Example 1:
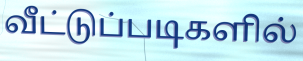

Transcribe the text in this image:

வீட்டுப்படிகளில்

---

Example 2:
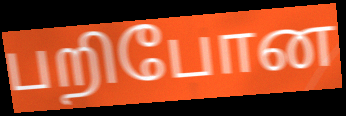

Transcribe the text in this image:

பறிபோன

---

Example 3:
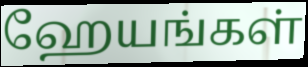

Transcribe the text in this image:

ஹேயங்கள்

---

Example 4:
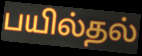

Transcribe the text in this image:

பயில்தல்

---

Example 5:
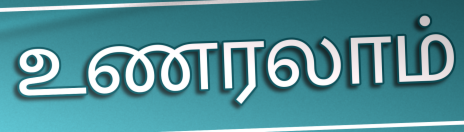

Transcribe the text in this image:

உணரலாம்